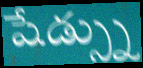
షేడ్స్ను